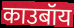
काउबॉय